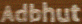
Adbhut